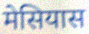
मेसियास